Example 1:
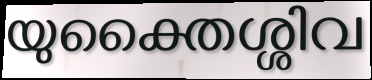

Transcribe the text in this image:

യുക്തൈശ്ശിവ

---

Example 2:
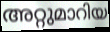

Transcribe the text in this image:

അറ്റുമാറിയ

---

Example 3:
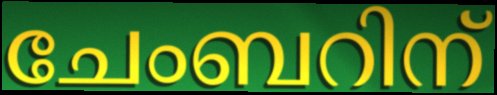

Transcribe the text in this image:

ചേംബറിന്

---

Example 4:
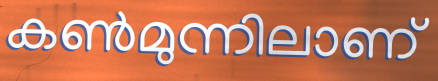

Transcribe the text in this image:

കൺമുന്നിലാണ്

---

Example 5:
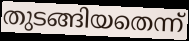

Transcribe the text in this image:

തുടങ്ങിയതെന്ന്